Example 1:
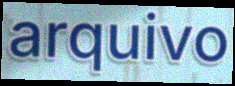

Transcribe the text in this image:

arquivo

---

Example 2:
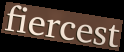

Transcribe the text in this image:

fiercest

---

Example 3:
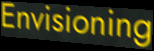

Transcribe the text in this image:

Envisioning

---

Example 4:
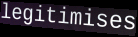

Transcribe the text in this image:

legitimises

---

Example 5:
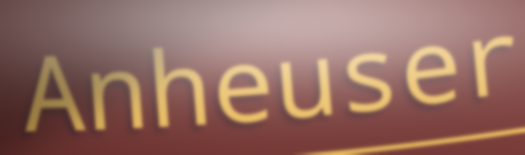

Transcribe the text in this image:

Anheuser